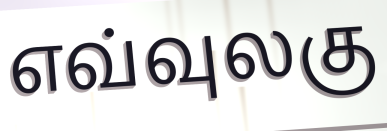
எவ்வுலகு